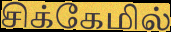
சிக்கேமில்